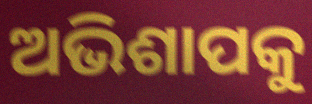
ଅଭିଶାପକୁ